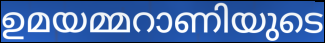
ഉമയമ്മറാണിയുടെ